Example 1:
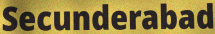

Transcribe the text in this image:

Secunderabad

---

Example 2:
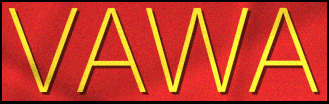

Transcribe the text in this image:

VAWA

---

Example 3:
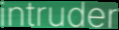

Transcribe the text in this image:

intruder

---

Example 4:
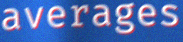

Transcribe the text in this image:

averages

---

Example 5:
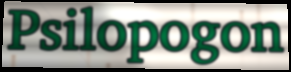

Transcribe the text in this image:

Psilopogon